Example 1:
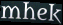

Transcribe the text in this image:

mhek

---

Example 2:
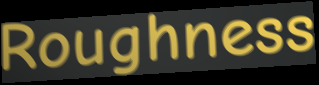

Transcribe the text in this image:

Roughness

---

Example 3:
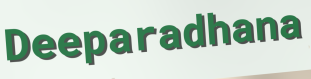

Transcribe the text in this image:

Deeparadhana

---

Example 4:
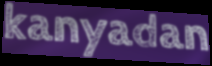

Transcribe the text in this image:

kanyadan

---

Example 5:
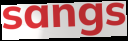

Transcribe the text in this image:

sangs